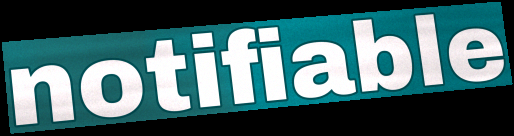
notifiable